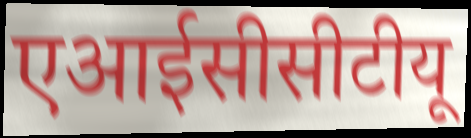
एआईसीसीटीयू